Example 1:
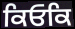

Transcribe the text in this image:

ਕਿਓਕਿ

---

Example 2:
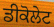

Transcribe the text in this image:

ਡੀਕੋਲੇਟ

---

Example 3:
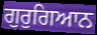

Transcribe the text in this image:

ਗੁਰੁਗਿਆਨ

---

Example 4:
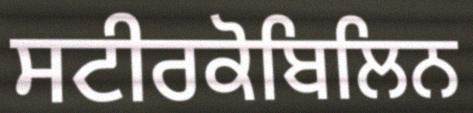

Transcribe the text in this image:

ਸਟੀਰਕੋਬਿਲਿਨ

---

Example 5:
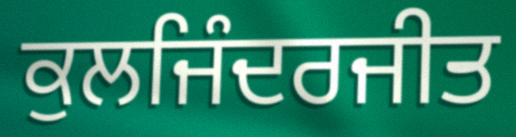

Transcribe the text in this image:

ਕੁਲਜਿੰਦਰਜੀਤ